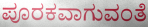
ಪೂರಕವಾಗುವಂತೆ